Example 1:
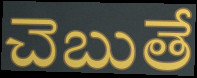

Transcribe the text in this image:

చెబుతే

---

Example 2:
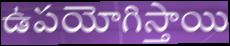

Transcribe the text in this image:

ఉపయోగిస్తాయి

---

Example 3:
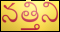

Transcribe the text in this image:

నత్తిని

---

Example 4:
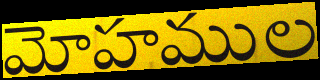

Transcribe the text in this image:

మోహముల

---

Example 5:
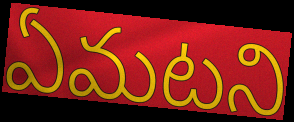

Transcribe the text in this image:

ఏమటని